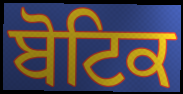
ਬੋਟਿਕ